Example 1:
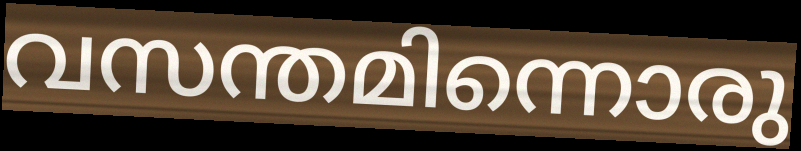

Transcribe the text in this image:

വസന്തമിന്നൊരു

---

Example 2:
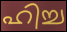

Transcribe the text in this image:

ഹിച്ച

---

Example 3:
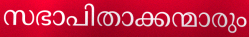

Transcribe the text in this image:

സഭാപിതാക്കന്മാരും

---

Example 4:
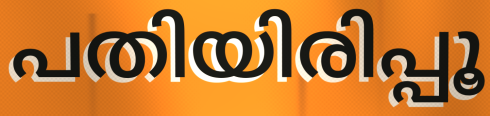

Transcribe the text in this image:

പതിയിരിപ്പൂ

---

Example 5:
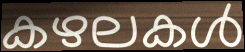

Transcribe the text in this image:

കഴലകൾ